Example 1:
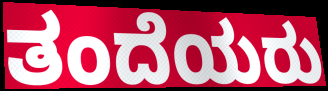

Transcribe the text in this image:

ತಂದೆಯರು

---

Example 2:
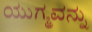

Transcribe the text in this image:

ಯುಗ್ಮವನ್ನು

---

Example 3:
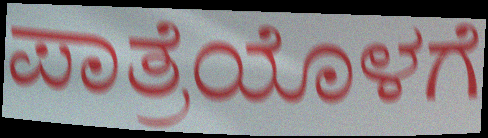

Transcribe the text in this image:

ಪಾತ್ರೆಯೊಳಗೆ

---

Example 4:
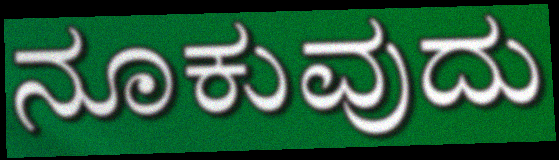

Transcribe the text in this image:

ನೂಕುವುದು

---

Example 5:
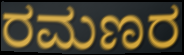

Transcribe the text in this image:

ರಮಣರ